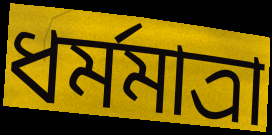
ধর্মমাত্রা